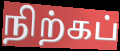
நிற்கப்